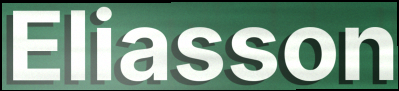
Eliasson